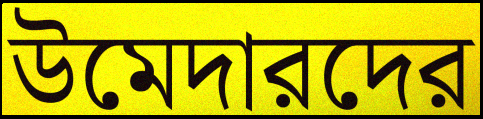
উমেদারদের